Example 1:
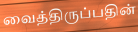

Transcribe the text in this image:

வைத்திருப்பதின்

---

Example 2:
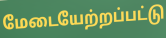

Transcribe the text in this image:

மேடையேற்றப்பட்டு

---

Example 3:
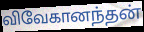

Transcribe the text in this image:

விவேகானந்தன்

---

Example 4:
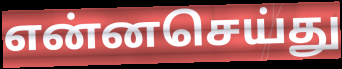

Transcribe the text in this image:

என்னசெய்து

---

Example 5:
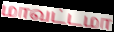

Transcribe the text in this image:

மாவட்டமா